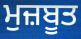
ਮੁਜ਼ਬੂਤ